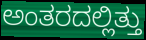
ಅಂತರದಲ್ಲಿತ್ತು